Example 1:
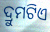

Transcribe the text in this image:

ଦ୍ରୁମଟିଏ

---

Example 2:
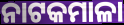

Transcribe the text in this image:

ନାଟକମାଳା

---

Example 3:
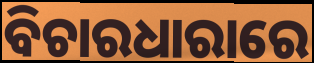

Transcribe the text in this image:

ବିଚାରଧାରାରେ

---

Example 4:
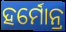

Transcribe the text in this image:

ହର୍ମୋନ୍ର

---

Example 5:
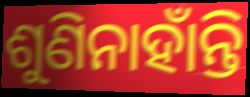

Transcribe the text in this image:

ଶୁଣିନାହାଁନ୍ତି